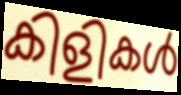
കിളികൾ